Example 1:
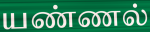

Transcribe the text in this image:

யண்ணல்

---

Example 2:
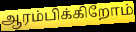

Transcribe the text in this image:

ஆரம்பிக்கிறோம்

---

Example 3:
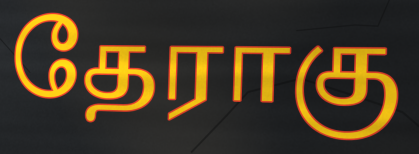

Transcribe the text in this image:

தேராகு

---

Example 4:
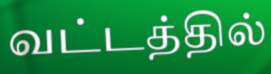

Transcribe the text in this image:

வட்டத்தில்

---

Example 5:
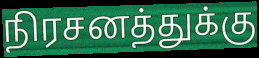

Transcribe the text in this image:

நிரசனத்துக்கு